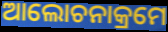
ଆଲୋଚନାକ୍ରମେ